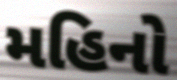
મહિનો